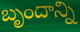
బృందాన్ని